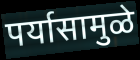
पर्यासामुळे